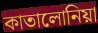
কাতালোনিয়া